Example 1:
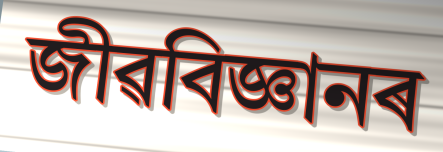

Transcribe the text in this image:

জীৱবিজ্ঞানৰ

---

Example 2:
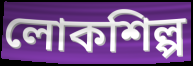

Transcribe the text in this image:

লোকশিল্প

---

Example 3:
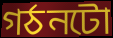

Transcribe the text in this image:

গঠনটো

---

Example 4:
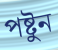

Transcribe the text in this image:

পষ্টুন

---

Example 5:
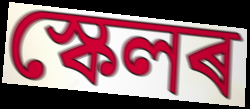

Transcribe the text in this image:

স্কেলৰ